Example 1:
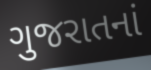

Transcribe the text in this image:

ગુજરાતનાં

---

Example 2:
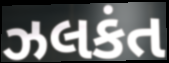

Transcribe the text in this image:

ઝલકંત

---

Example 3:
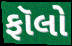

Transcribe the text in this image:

ફૉલો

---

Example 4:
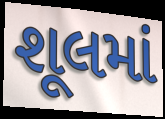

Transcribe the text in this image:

શૂલમાં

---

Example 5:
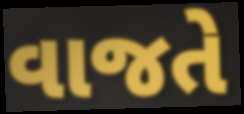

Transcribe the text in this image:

વાજતે